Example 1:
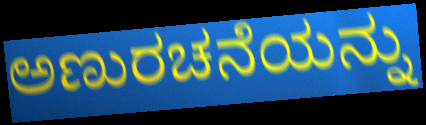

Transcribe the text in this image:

ಅಣುರಚನೆಯನ್ನು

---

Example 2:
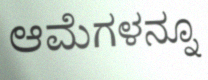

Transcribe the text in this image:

ಆಮೆಗಳನ್ನೂ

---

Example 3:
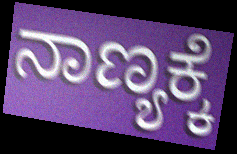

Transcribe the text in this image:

ನಾಣ್ಯಕ್ಕೆ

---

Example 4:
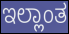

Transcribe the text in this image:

ಇಲ್ಲಾಂತ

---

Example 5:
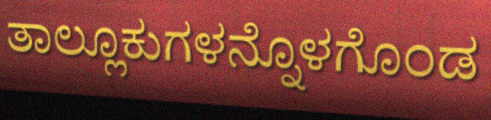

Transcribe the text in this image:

ತಾಲ್ಲೂಕುಗಳನ್ನೊಳಗೊಂಡ